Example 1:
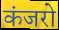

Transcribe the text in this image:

कंजरो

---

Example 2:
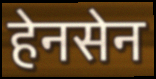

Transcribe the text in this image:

हेनसेन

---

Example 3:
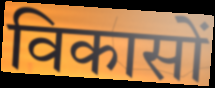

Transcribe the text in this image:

विकासों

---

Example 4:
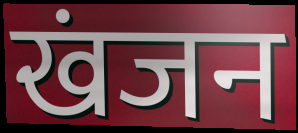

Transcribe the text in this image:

खंजन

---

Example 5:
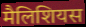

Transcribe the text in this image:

मैलिशियस